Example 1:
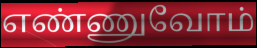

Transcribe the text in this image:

எண்ணுவோம்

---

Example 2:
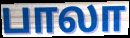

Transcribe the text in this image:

பாலா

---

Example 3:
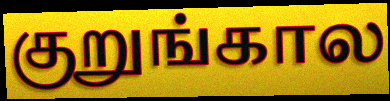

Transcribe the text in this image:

குறுங்கால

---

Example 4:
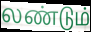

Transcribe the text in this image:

லண்டும்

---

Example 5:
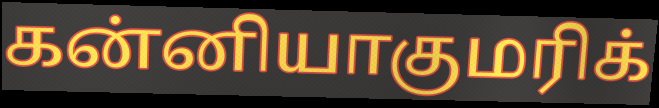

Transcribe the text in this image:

கன்னியாகுமரிக்